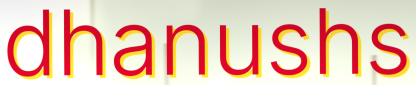
dhanushs